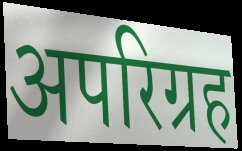
अपरिग्रह